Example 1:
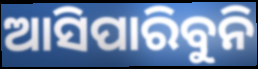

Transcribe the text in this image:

ଆସିପାରିବୁନି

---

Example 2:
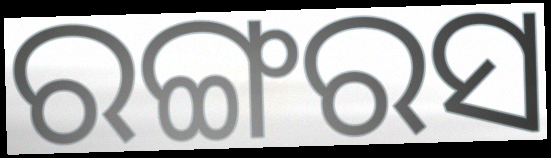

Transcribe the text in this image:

ରଙ୍ଗରସ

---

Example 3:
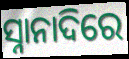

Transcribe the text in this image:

ସ୍ନାନାଦିରେ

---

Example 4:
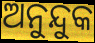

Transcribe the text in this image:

ଅନୁନ୍ଦୁକ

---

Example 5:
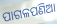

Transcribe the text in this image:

ପାଗଳପଣିଆ